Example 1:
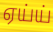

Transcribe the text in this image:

ஏய்ய்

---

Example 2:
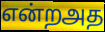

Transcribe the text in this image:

என்றஅத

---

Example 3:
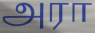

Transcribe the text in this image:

அரா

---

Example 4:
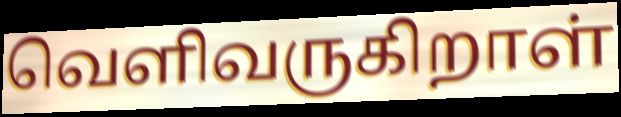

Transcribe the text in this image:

வெளிவருகிறாள்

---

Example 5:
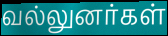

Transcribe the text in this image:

வல்லுனர்கள்